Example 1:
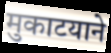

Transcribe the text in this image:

मुकाटयाने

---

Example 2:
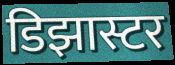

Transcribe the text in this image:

डिझास्टर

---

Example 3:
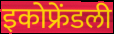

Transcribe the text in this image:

इकोफ्रेंडली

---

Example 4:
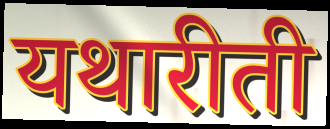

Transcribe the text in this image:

यथारीती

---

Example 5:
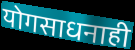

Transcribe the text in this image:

योगसाधनाही